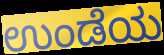
ಉಂಡೆಯ